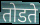
तोडते